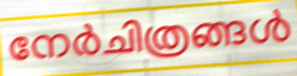
നേർചിത്രങ്ങൾ